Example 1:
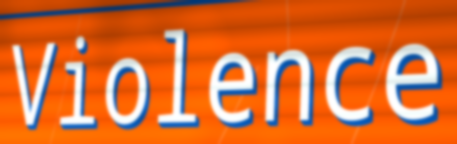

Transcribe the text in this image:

Violence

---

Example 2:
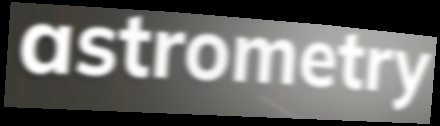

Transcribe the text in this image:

astrometry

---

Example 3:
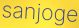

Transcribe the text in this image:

sanjoge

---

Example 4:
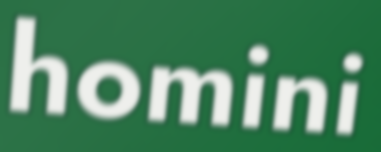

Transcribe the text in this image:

homini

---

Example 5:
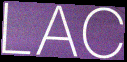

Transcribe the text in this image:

LAC